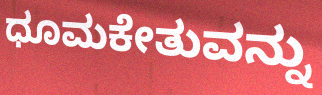
ಧೂಮಕೇತುವನ್ನು